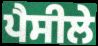
ਪੈਸੀਲੇ